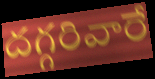
దగ్గరివారే